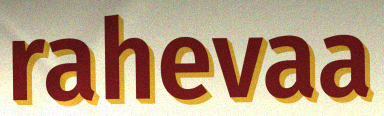
rahevaa